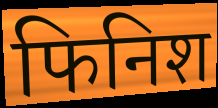
फिनिश